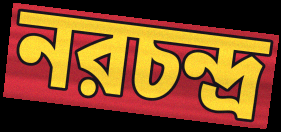
নরচন্দ্র